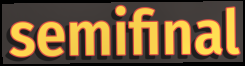
semifinal